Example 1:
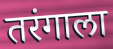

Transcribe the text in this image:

तरंगाला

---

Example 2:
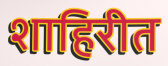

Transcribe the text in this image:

शाहिरीत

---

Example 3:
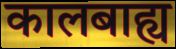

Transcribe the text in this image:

कालबाह्य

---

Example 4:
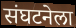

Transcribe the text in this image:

संघटनेला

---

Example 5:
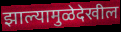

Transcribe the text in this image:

झाल्यामुळेदेखील